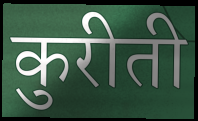
कुरीती